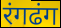
रंगढंग